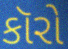
કૉરો